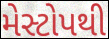
મેસ્ટોપથી